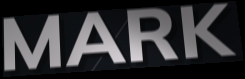
MARK